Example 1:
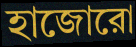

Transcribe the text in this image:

হাজোরো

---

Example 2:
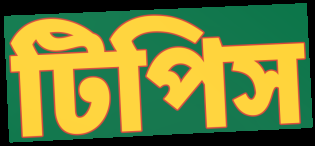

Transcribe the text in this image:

টিপিস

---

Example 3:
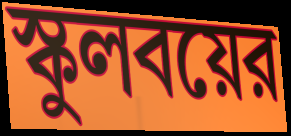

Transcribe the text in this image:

স্কুলবয়ের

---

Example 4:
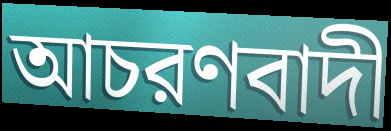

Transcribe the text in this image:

আচরণবাদী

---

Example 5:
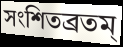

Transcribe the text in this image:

সংশিতব্রতম্